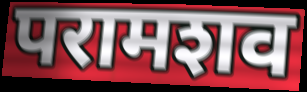
परामशव